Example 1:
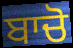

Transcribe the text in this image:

ਬਾਚੋ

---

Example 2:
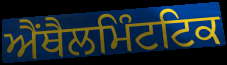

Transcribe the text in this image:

ਐਂਥੈਲਮਿੰਟਟਿਕ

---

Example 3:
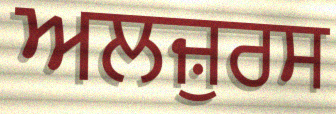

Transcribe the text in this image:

ਅਲਜ਼ੁਰਸ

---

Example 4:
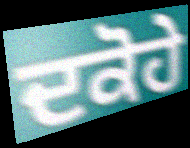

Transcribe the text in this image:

ਦਕੋਹੇ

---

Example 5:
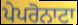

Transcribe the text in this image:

ਪੇਪਰੋਨਾਟਾ